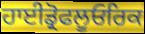
ਹਾਈਡ੍ਰੋਫਲੂਓਰਿਕ